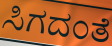
ಸಿಗದಂತೆ